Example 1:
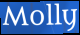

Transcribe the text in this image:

Molly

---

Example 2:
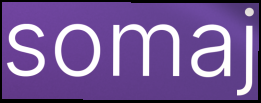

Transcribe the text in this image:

somaj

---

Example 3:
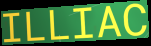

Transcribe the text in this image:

ILLIAC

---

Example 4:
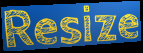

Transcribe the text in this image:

Resize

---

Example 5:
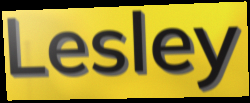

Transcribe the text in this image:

Lesley